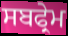
ਸਬਫ੍ਰੇਮ